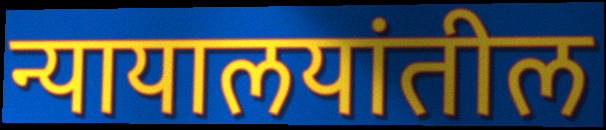
न्यायालयांतील